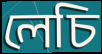
লেচি